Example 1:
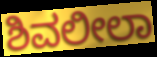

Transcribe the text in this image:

ಶಿವಲೀಲಾ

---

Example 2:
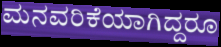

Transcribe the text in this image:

ಮನವರಿಕೆಯಾಗಿದ್ದರೂ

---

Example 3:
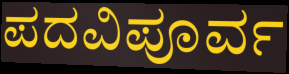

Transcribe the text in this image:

ಪದವಿಪೂರ್ವ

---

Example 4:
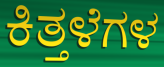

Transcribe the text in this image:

ಕಿತ್ತಳೆಗಳ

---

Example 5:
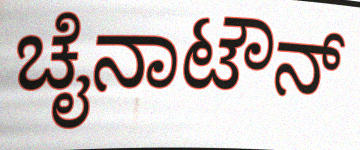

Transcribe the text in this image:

ಚೈನಾಟೌನ್